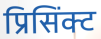
प्रिसिंक्ट